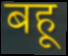
बहू